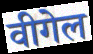
वीगेल